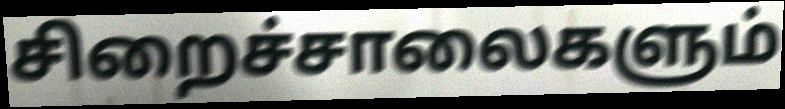
சிறைச்சாலைகளும்